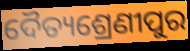
ଦୈତ୍ୟଶ୍ରେଣୀପୁର